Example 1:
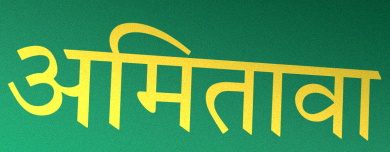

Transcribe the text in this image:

अमितावा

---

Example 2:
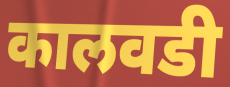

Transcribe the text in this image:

कालवडी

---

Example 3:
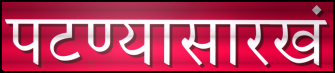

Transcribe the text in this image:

पटण्यासारखं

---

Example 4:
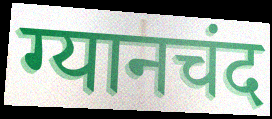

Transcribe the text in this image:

ग्यानचंद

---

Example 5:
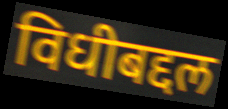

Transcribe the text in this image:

विधीबद्दल